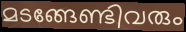
മടങ്ങേണ്ടിവരും